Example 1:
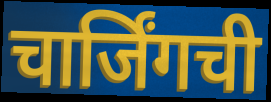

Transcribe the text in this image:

चार्जिंगची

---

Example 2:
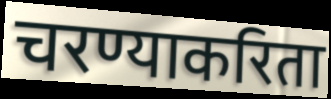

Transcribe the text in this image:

चरण्याकरिता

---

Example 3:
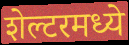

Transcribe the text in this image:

शेल्टरमध्ये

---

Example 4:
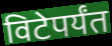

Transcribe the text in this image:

विटेपर्यंत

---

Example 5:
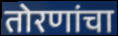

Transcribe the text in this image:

तोरणांचा